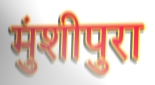
मुंशीपुरा